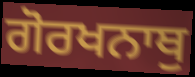
ਗੋਰਖਨਾਥੁ